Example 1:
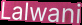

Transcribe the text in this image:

Lalwani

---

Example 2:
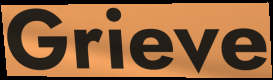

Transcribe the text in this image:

Grieve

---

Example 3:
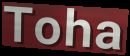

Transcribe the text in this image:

Toha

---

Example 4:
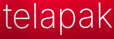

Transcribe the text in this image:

telapak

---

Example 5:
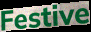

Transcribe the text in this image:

Festive